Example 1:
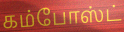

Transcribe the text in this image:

கம்போஸ்ட்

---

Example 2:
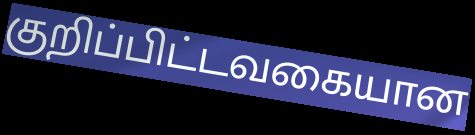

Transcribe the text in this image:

குறிப்பிட்டவகையான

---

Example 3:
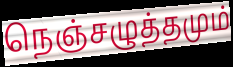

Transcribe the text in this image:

நெஞ்சழுத்தமும்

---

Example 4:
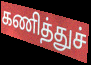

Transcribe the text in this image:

கணித்துச்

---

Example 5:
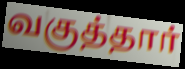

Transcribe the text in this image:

வகுத்தார்